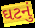
ઘટનું